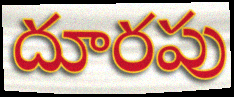
దూరపు